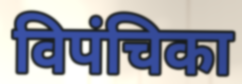
विपंचिका